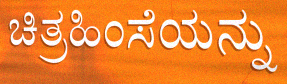
ಚಿತ್ರಹಿಂಸೆಯನ್ನು